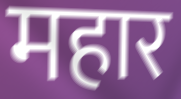
महार